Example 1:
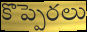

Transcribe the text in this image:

కొప్పెరలు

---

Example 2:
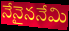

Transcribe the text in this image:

నేనైననేమి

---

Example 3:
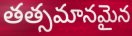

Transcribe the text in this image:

తత్సమానమైన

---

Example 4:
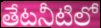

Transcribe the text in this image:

తేటనీటిలో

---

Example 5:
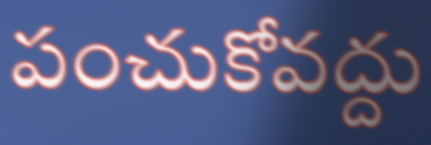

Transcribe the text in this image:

పంచుకోవద్దు